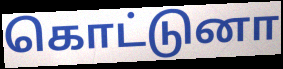
கொட்டுனா